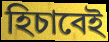
হিচাবেই